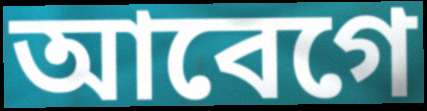
আবেগে